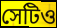
সেটিও